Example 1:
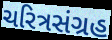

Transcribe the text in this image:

ચરિત્રસંગ્રહ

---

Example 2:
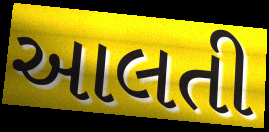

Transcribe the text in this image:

આલતી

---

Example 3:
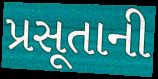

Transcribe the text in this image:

પ્રસૂતાની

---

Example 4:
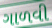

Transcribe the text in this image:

ગાળવી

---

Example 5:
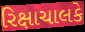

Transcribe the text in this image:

રિક્ષાચાલકે